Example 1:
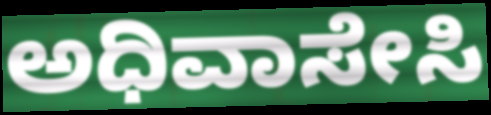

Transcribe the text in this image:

ಅಧಿವಾಸೇಸಿ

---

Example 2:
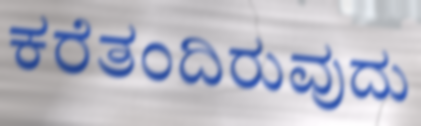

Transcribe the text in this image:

ಕರೆತಂದಿರುವುದು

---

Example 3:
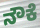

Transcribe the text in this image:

ನೌಕೆ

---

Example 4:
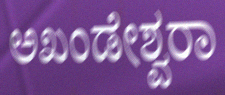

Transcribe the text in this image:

ಅಖಂಡೇಶ್ವರಾ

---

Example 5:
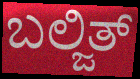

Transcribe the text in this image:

ಬಲ್ಜಿತ್